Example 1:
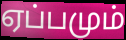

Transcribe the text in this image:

ஏப்பமும்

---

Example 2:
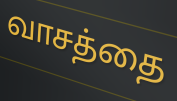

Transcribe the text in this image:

வாசத்தை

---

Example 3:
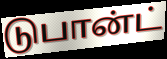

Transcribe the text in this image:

டுபான்ட்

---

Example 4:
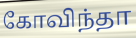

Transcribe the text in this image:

கோவிந்தா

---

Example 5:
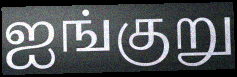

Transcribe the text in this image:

ஐங்குறு